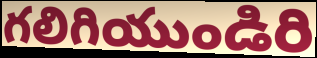
గలిగియుండిరి